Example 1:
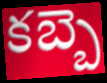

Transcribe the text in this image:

కబ్బె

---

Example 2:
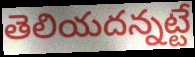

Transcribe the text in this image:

తెలియదన్నట్టే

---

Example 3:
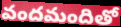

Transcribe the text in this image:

వందమందితో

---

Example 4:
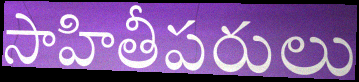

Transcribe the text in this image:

సాహితీపరులు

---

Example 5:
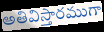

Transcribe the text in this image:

అతివిస్తారముగా